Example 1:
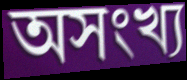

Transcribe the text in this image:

অসংখ্য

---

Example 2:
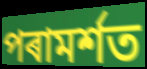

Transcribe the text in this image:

পৰামৰ্শত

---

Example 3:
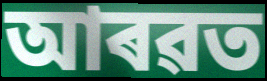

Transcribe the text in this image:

আৰৱত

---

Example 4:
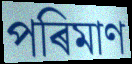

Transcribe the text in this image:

পৰিমাণ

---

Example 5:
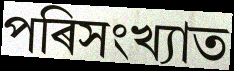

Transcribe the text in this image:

পৰিসংখ্যাত